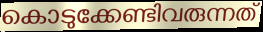
കൊടുക്കേണ്ടിവരുന്നത്